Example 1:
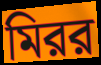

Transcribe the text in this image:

মিরর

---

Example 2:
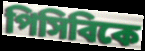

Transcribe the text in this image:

পিসিবিকে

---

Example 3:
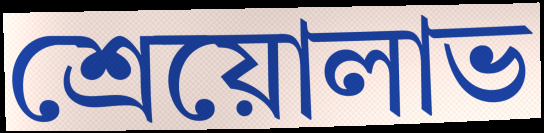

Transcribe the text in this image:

শ্রেয়োলাভ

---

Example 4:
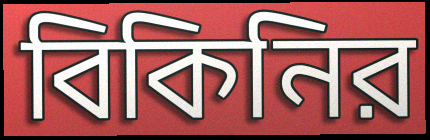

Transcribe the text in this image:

বিকিনির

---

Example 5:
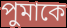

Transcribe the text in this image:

পুমাকে